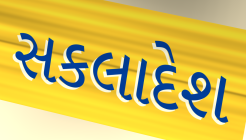
સકલાદેશ